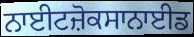
ਨਾਈਟਜ਼ੋਕਸਾਨਾਈਡ